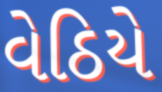
વેઠિયે